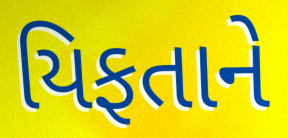
યિફતાને